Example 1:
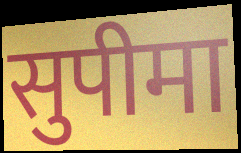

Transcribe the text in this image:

सुपीमा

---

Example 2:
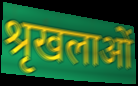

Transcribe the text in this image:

श्रृखलाओं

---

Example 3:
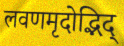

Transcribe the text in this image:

लवणमृदोद्भिद्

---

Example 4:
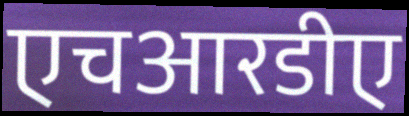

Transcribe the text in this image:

एचआरडीए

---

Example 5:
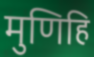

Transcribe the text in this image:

मुणिहि